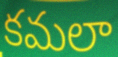
కమలా